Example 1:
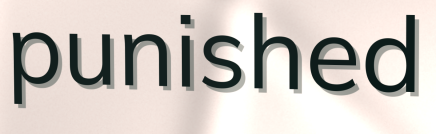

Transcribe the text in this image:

punished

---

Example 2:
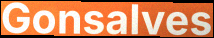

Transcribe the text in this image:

Gonsalves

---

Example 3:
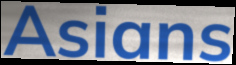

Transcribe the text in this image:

Asians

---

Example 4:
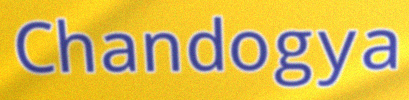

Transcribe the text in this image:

Chandogya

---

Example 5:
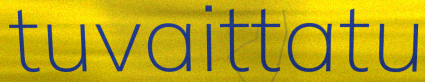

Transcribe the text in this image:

tuvaittatu